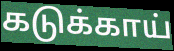
கடுக்காய்